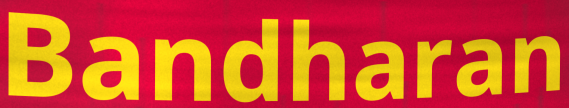
Bandharan